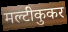
मल्टीकुकर